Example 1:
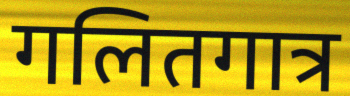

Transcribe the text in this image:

गलितगात्र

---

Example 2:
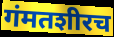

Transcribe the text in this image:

गंमतशीरच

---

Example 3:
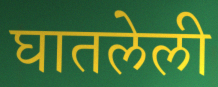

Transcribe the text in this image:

घातलेली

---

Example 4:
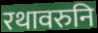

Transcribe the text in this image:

रथावरुनि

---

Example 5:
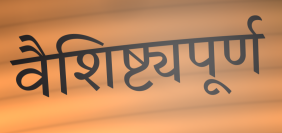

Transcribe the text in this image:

वैशिष्ट्यपूर्ण